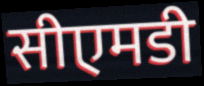
सीएमडी